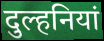
दुल्हनियां